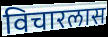
विचारलास